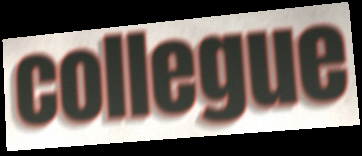
collegue